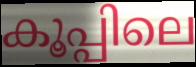
കൂപ്പിലെ